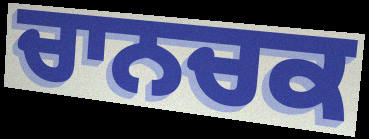
ਚਾਨਚਕ